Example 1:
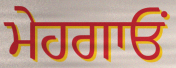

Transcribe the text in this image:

ਮੇਹਗਾਓਂ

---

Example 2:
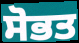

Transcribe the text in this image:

ਸੋਭਤ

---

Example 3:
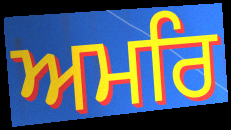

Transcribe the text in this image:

ਅਮਰਿ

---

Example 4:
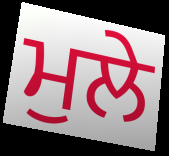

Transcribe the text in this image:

ਮੁਲੇ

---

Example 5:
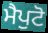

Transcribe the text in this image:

ਮੈਪੁਟੋ